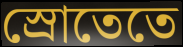
স্রোতেতে